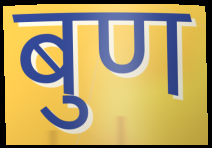
बुण